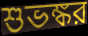
শুভঙ্কর